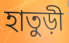
হাতুড়ী